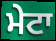
ਮੇਟਾ